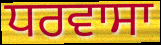
ਧਰਵਾਸਾ